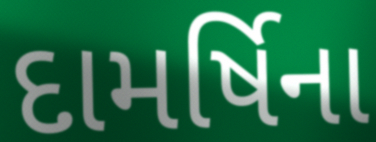
દામર્ષિના